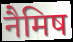
नैमिष